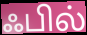
ஃபில்